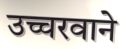
उच्चरवाने